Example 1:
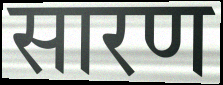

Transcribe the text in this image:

सारण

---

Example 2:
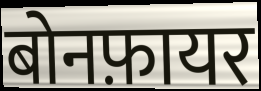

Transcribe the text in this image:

बोनफ़ायर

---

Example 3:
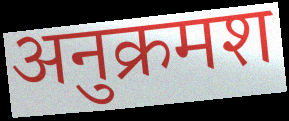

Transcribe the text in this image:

अनुक्रमश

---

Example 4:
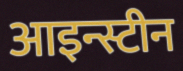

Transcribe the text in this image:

आइन्स्टीन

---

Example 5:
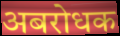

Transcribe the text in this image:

अबरोधक